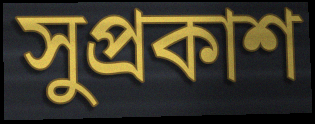
সুপ্রকাশ